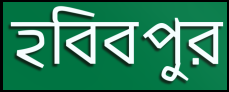
হবিবপুর